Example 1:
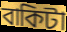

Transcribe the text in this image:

বাকিটা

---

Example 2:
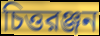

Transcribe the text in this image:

চিত্তরঞ্জন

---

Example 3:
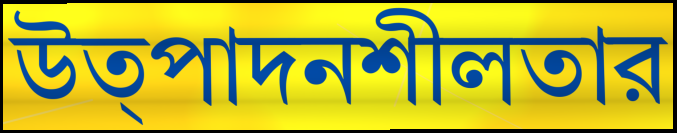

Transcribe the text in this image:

উত্পাদনশীলতার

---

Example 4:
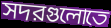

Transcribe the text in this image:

সদরগুলোতে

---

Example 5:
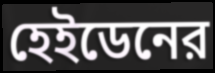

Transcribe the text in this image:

হেইডেনের